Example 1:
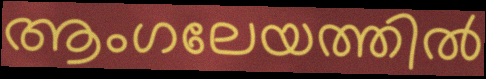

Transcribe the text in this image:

ആംഗലേയത്തിൽ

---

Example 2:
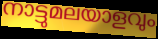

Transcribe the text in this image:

നാട്ടുമലയാളവും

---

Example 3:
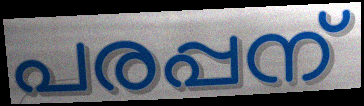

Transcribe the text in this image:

പരപ്പന്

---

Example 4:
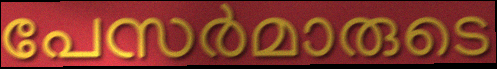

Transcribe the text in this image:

പേസർമാരുടെ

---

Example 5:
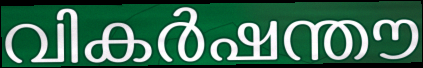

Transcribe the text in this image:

വികർഷന്തൗ